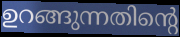
ഉറങ്ങുന്നതിന്റെ